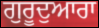
ਗੁਰੂਦੁਆਰਾ